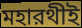
মহারথীই